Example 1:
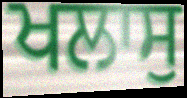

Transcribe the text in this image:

ਖਲਾਸੁ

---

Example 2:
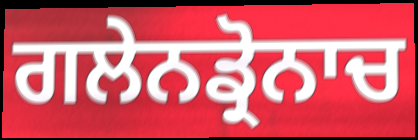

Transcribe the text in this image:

ਗਲੇਨਡ੍ਰੋਨਾਚ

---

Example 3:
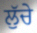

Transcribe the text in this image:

ਲੁੱਚੇ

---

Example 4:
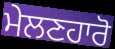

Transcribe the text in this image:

ਮੇਲਣਹਾਰੋ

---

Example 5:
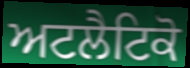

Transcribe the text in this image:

ਅਟਲੈਟਿਕੋ